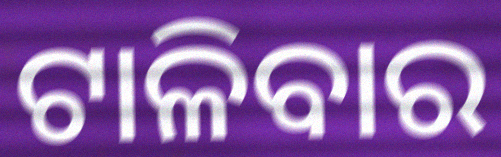
ଟାଳିବାର